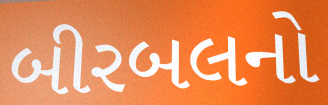
બીરબલનો